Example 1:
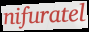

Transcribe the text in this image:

nifuratel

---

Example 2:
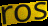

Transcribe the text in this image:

ros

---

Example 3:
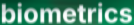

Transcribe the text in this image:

biometrics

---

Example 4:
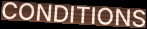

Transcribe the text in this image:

CONDITIONS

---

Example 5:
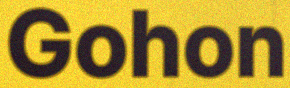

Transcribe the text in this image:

Gohon